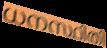
ധനസ്ഥിതി